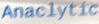
Anaclytic